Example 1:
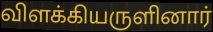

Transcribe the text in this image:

விளக்கியருளினார்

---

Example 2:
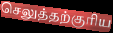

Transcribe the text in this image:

செலுத்தற்குரிய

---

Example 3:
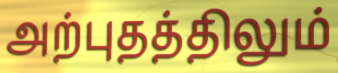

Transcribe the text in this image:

அற்புதத்திலும்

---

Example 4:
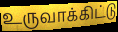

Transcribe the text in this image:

உருவாக்கிட்டு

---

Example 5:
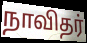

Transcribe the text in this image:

நாவிதர்